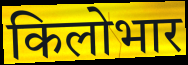
किलोभार